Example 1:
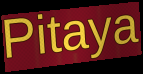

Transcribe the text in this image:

Pitaya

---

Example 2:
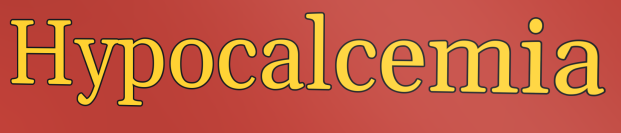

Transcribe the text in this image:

Hypocalcemia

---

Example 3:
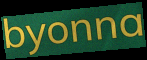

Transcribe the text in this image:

byonna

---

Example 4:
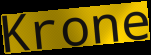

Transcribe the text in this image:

Krone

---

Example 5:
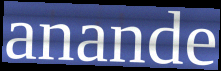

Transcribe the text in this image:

anande